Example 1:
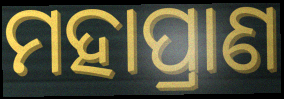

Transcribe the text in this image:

ମହାପ୍ରାଣ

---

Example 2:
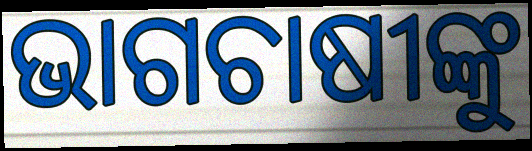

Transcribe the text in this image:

ଭାଗଚାଷୀଙ୍କୁ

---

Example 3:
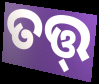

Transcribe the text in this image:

ତତ୍ତ୍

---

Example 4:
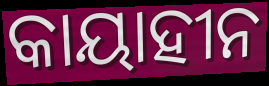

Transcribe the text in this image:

କାୟାହୀନ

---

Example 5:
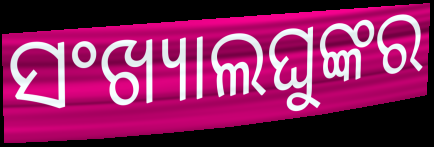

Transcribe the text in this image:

ସଂଖ୍ୟାଲଘୁଙ୍କର